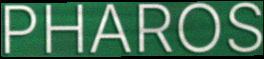
PHAROS